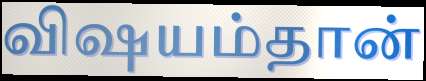
விஷயம்தான்